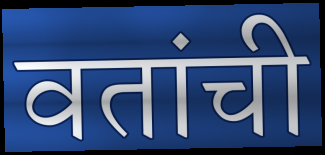
वतांची